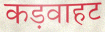
कड़वाहट